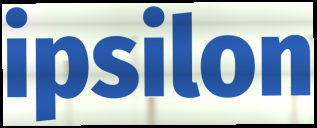
ipsilon